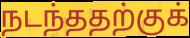
நடந்ததற்குக்